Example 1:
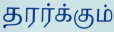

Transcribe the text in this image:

தரர்க்கும்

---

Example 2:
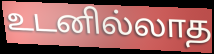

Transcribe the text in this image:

உடனில்லாத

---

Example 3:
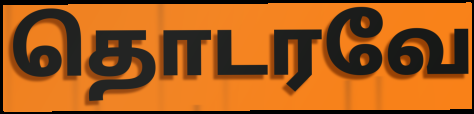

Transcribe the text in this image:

தொடரவே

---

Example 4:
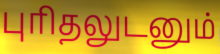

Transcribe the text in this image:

புரிதலுடனும்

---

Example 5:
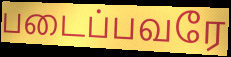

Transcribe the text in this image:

படைப்பவரே